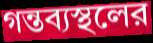
গন্তব্যস্থলের